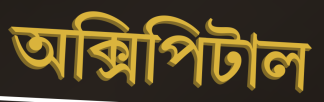
অক্সিপিটাল